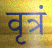
वृत्रं